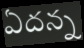
ఏదన్న